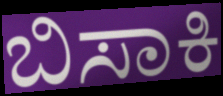
ಬಿಸಾಕಿ